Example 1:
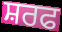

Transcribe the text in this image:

ਸ਼ਰਫ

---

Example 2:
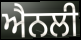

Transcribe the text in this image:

ਐਨਲੀ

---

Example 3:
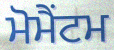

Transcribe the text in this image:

ਮੋਮੈਂਟਮ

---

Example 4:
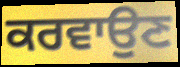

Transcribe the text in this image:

ਕਰਵਾਉਣ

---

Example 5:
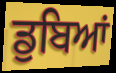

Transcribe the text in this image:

ਡੁਬਿਆਂ